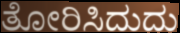
ತೋರಿಸಿದುದು